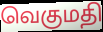
வெகுமதி